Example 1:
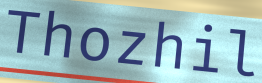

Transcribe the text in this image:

Thozhil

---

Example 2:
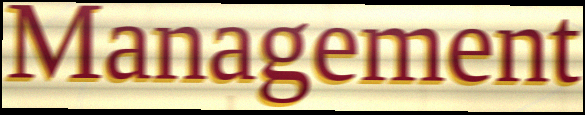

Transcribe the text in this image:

Management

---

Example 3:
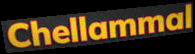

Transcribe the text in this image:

Chellammal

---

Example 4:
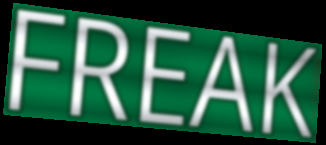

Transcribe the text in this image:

FREAK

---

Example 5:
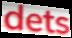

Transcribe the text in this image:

dets